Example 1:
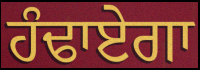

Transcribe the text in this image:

ਹੰਢਾਏਗਾ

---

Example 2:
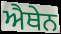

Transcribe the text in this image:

ਐਥੇਨ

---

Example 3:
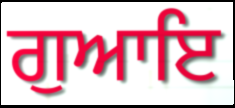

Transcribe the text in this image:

ਗੁਆਇ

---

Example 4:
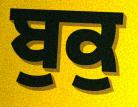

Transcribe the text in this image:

ਬੁਕੁ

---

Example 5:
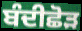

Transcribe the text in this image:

ਬੰਦੀਛੋੜ